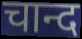
चान्द